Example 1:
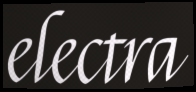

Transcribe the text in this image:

electra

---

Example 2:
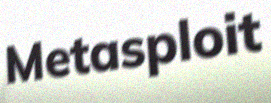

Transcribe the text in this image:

Metasploit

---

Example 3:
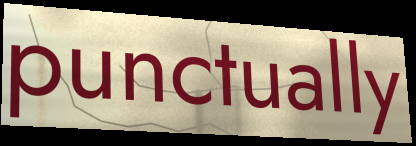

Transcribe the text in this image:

punctually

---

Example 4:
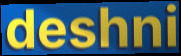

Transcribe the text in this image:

deshni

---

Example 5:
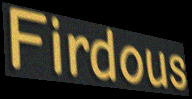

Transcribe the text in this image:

Firdous